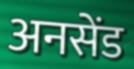
अनसेंड